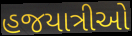
હજયાત્રીઓ